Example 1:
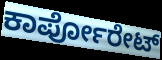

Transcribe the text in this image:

ಕಾರ್ಪೋರೇಟ್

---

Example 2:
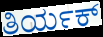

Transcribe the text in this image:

ತಿರ್ಯಕ್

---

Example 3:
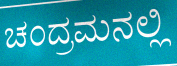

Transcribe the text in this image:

ಚಂದ್ರಮನಲ್ಲಿ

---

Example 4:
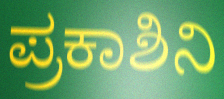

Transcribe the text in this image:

ಪ್ರಕಾಶಿನಿ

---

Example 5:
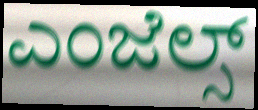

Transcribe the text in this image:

ಎಂಜೆಲ್ಸ್